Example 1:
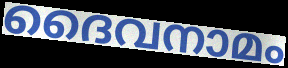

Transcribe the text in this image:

ദൈവനാമം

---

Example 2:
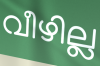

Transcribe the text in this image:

വീഴില്ല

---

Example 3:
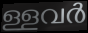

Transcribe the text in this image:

ള്ളവർ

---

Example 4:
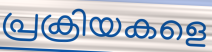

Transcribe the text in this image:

പ്രക്രിയകളെ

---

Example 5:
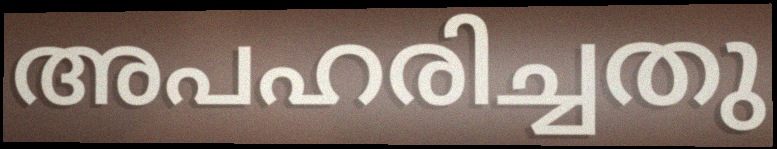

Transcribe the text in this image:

അപഹരിച്ചതു